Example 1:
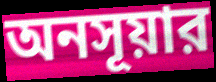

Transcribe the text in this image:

অনসূয়ার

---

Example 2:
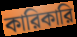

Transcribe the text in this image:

কারিকারি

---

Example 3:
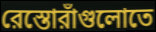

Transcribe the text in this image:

রেস্তোরাঁগুলোতে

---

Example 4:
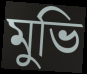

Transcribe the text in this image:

মুভি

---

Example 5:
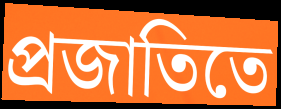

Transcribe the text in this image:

প্রজাতিতে